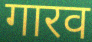
गारव